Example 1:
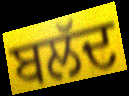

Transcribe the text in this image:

ਬਲੱਦ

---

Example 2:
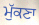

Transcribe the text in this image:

ਮੁੱਕਣਾ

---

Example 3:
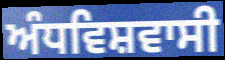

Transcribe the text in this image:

ਅੰਧਵਿਸ਼ਵਾਸੀ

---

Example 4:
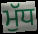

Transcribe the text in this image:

ਮੁੱਧ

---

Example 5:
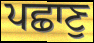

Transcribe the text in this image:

ਪਛਾਣੁ